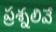
ప్రశ్నలివే